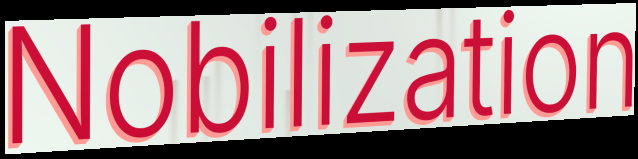
Nobilization